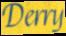
Derry